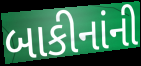
બાકીનાંની